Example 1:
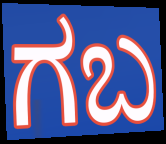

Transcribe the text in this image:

ಗಬ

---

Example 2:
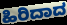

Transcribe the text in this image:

ಹಿರಿದಾದ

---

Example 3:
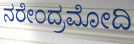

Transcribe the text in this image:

ನರೇಂದ್ರಮೋದಿ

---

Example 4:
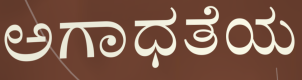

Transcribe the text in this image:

ಅಗಾಧತೆಯ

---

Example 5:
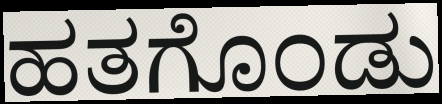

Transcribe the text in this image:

ಹತಗೊಂಡು